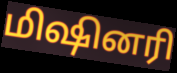
மிஷினரி